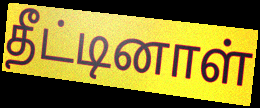
தீட்டினாள்